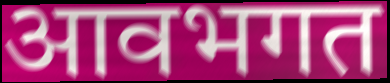
आवभगत